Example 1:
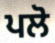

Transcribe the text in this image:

ਪਲੋ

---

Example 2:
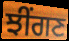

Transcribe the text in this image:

ਝੀਂਗਣ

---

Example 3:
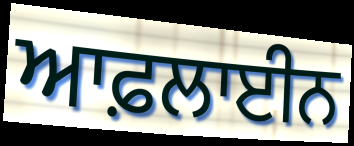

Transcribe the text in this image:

ਆਫ਼ਲਾਈਨ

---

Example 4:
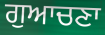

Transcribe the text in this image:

ਗੁਆਚਣਾ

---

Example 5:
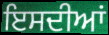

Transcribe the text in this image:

ਇਸਦੀਆਂ